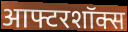
आफ्टरशॉक्स